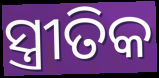
ସ୍ତ୍ରୀତିକ